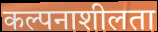
कल्पनाशीलता